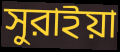
সুরাইয়া